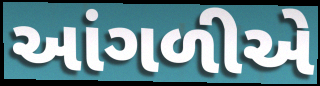
આંગળીએ